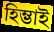
হিম্ভাই